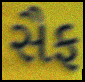
સૈફ